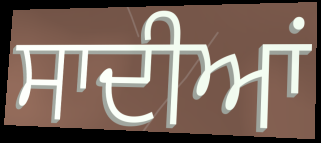
ਸਾਦੀਆਂ